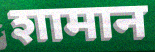
शामान